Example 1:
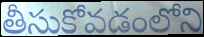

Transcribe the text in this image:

తీసుకోవడంలోని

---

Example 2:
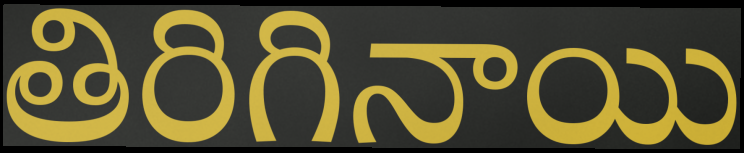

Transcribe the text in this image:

తిరిగినాయి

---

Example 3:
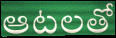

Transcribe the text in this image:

ఆటలతో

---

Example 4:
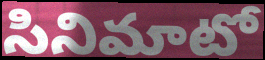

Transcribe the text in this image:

సినిమాటో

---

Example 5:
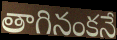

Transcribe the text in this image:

తాగినంకనే